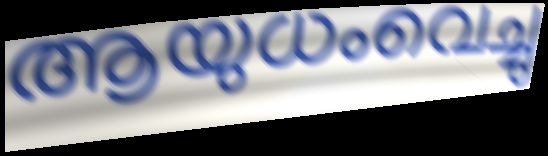
ആയുധംവെച്ചു